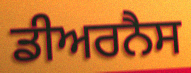
ਡੀਅਰਨੈਸ